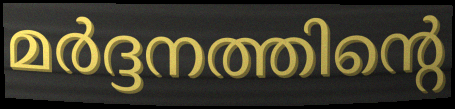
മർദ്ദനത്തിന്റെ